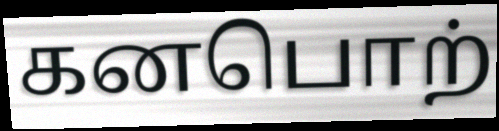
கனபொற்